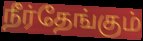
நீர்தேங்கும்